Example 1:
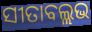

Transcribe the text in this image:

ସୀତାବଲ୍ଲଭ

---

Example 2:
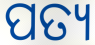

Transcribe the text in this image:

ପତ୍ୟ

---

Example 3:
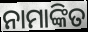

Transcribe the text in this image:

ନାମାଙ୍କିତ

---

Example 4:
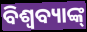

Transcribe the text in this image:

ବିଶ୍ବବ୍ୟାଙ୍କ୍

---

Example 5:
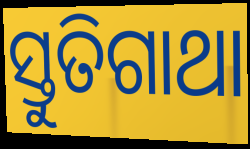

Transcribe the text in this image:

ସ୍ତୁତିଗାଥା